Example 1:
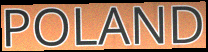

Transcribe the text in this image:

POLAND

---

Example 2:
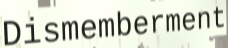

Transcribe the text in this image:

Dismemberment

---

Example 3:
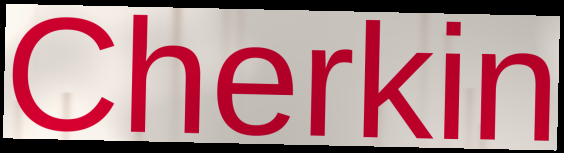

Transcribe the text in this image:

Cherkin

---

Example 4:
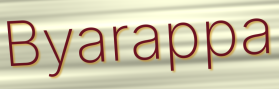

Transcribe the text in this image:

Byarappa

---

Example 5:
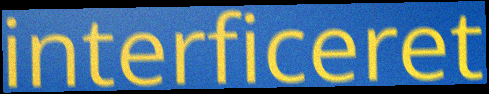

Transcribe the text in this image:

interficeret